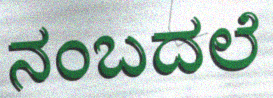
ನಂಬದಲೆ